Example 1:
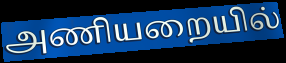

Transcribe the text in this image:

அணியறையில்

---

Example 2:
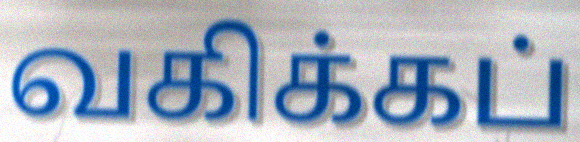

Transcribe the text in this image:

வகிக்கப்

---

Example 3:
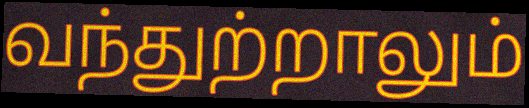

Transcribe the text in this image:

வந்துற்றாலும்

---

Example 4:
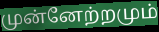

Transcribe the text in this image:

முன்னேற்றமும்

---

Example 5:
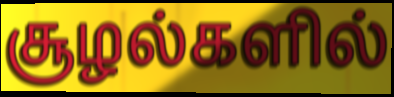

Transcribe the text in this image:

சூழல்களில்